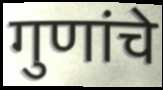
गुणांचे